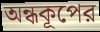
অন্ধকূপের